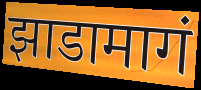
झाडामागं